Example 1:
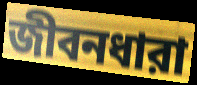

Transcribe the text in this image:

জীবনধারা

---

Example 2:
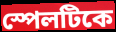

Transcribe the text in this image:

স্পেলটিকে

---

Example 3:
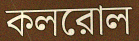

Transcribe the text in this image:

কলরোল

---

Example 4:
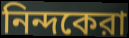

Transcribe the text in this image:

নিন্দকেরা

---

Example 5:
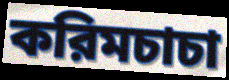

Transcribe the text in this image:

করিমচাচা